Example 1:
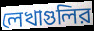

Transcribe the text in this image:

লেখাগুলির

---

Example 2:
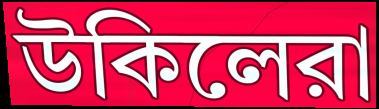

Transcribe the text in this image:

উকিলেরা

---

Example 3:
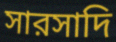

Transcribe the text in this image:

সারসাদি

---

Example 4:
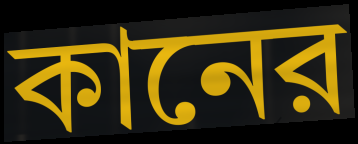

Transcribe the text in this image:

কানের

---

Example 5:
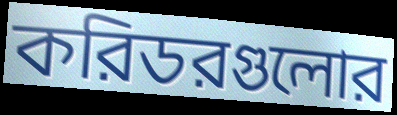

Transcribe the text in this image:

করিডরগুলোর